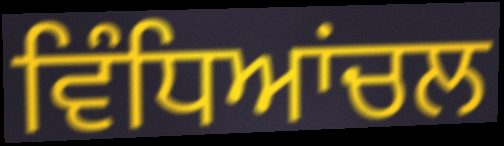
ਵਿੰਧਿਆਂਚਲ